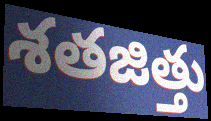
శతజిత్తు